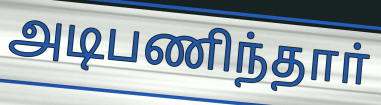
அடிபணிந்தார்